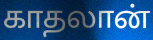
காதலான்